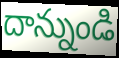
దాన్నుండి